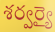
శర్వర్యై